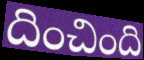
దించింది